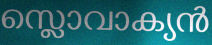
സ്ലൊവാക്യൻ